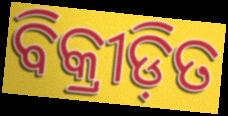
ବିକ୍ରୀଡ଼ିତ